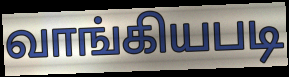
வாங்கியபடி